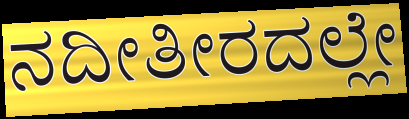
ನದೀತೀರದಲ್ಲೇ